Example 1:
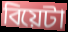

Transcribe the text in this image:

বিয়েটা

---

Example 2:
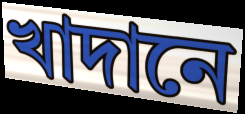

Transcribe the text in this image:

খাদানে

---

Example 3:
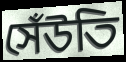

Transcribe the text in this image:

সেঁউতি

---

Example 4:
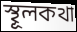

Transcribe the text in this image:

স্থূলকথা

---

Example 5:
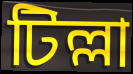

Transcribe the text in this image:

টিল্লা